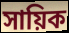
সায়িক